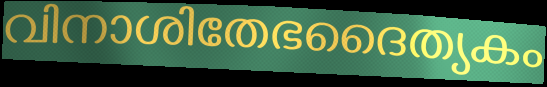
വിനാശിതേഭദൈത്യകം